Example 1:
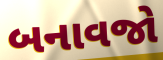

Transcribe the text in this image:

બનાવજો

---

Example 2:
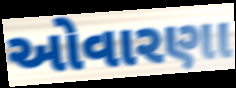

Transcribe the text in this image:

ઓવારણા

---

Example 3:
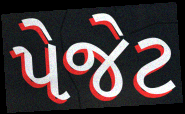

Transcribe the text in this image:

પેજેટ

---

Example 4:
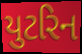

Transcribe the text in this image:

યુટરિન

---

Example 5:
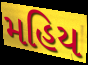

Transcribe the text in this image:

મહિય